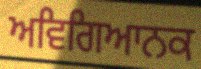
ਅਵਿਗਿਆਨਕ